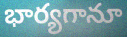
భార్యగానూ